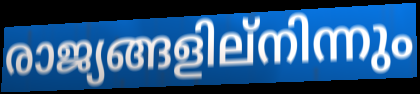
രാജ്യങ്ങളില്നിന്നും